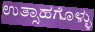
ಉತ್ಸಾಹಗೊಳ್ಳು